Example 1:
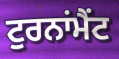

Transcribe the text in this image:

ਟੁਰਨਾਂਮੈਂਟ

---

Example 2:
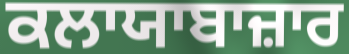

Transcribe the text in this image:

ਕਲਾਯਾਬਾਜ਼ਾਰ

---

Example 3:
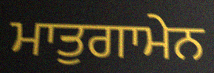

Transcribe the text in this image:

ਮਾਤੁਗਾਮੇਨ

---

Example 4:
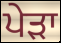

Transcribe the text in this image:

ਪੇੜਾ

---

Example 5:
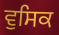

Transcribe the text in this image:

ਵੁਸਿਕ